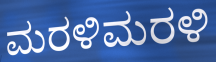
ಮರಳಿಮರಳಿ